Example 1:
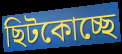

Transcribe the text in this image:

ছিটকোচ্ছে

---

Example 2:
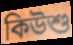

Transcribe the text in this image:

কিউশু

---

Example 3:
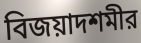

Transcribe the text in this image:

বিজয়াদশমীর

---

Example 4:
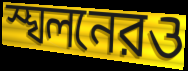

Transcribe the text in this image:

স্খলনেরও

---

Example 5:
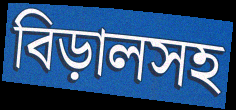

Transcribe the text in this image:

বিড়ালসহ